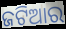
ଜଟିଆର